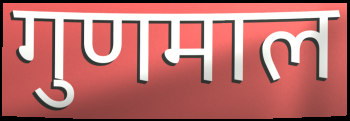
गुणमाल